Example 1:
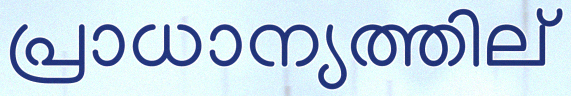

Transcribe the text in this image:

പ്രാധാന്യത്തില്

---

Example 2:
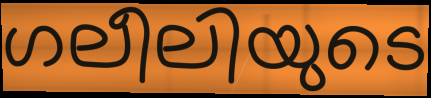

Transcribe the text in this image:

ഗലീലിയുടെ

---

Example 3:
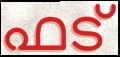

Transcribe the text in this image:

ഫട്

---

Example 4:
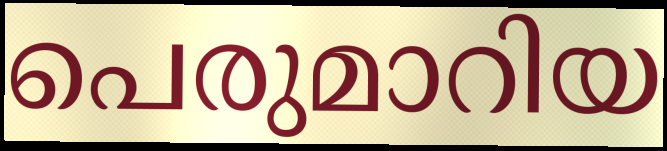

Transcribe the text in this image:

പെരുമാറിയ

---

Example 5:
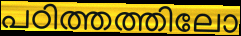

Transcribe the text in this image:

പഠിത്തത്തിലോ